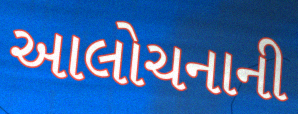
આલોચનાની